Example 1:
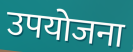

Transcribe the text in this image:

उपयोजना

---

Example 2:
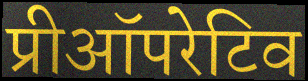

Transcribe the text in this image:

प्रीऑपरेटिव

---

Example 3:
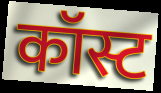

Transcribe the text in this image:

कॉस्ट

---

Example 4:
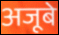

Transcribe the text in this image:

अजूबे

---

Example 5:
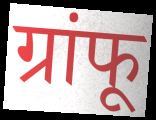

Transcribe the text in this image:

ग्रांफू